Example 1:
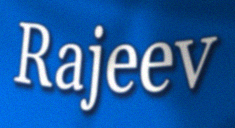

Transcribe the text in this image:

Rajeev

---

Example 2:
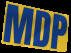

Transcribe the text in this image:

MDP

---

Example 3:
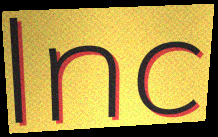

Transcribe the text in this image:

Inc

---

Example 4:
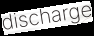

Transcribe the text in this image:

discharge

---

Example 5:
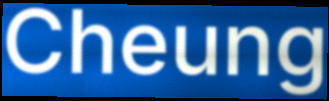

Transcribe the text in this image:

Cheung